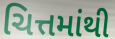
ચિત્તમાંથી